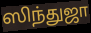
ஸிந்துஜா